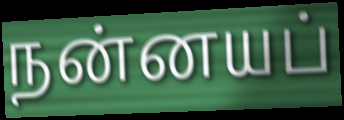
நன்னயப்